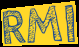
RMI